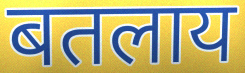
बतलाय